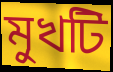
মুখটি